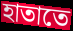
হাতাতে